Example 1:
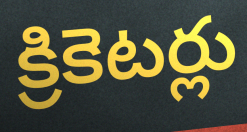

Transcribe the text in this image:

క్రికెటర్లు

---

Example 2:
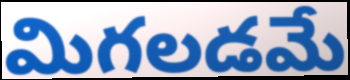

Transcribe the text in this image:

మిగలడమే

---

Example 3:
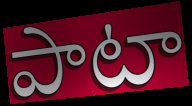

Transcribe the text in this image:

పాటా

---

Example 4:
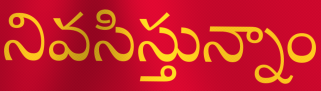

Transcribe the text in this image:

నివసిస్తున్నాం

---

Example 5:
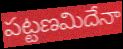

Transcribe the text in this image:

పట్టణమిదేనా